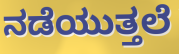
ನಡೆಯುತ್ತಲೆ